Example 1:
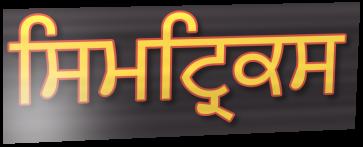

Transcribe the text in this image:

ਸਿਮਟ੍ਰਿਕਸ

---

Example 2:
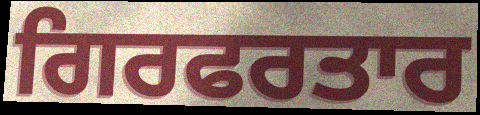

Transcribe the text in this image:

ਗਿਰਫਰਤਾਰ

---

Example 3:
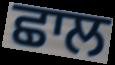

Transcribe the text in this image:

ਛਾਲ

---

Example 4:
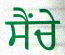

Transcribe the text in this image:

ਸੈਂਚੇ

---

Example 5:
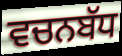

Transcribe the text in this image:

ਵਚਨਬੱਧ